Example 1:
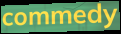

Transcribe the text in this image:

commedy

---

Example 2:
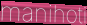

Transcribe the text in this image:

manihoti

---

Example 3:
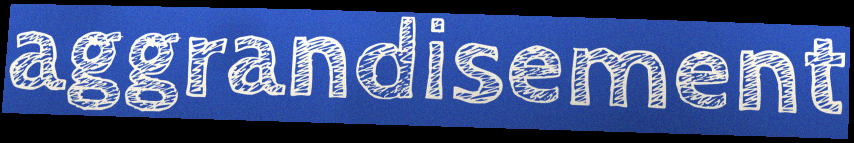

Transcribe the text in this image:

aggrandisement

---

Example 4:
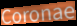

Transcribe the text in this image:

Coronae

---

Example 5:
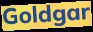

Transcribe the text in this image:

Goldgar